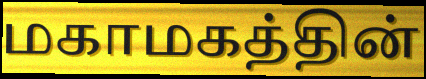
மகாமகத்தின்